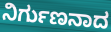
ನಿರ್ಗುಣನಾದ